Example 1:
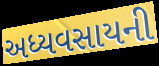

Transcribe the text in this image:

અધ્યવસાયની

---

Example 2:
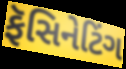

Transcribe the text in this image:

ફૅસિનેટિંગ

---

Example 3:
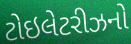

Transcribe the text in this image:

ટોઇલેટરીઝનો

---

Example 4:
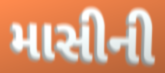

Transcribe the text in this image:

માસીની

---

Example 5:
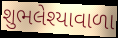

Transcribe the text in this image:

શુભલેશ્યાવાળા